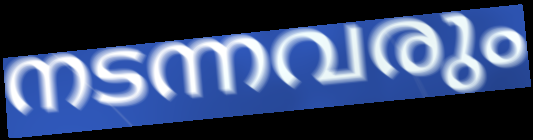
നടന്നവരും